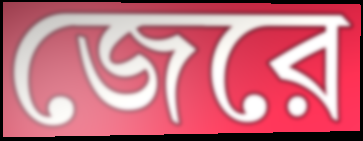
জেরে